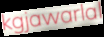
kgjawarlal